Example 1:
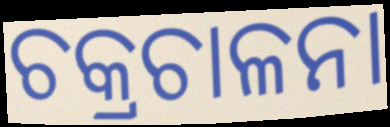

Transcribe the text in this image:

ଚକ୍ରଚାଳନା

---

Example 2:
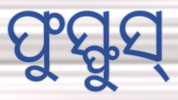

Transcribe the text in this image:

ଫୁସ୍ଫୁସ୍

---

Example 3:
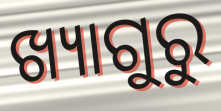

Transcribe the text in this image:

ଖ୍ୟାଗୁରୁ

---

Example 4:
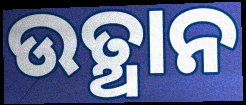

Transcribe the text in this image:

ଉତ୍ଥାନ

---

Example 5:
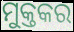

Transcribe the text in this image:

ମୁକ୍ତକର